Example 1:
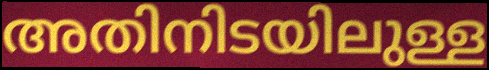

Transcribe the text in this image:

അതിനിടയിലുള്ള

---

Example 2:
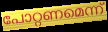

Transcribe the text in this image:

പോറ്റണമെന്ന്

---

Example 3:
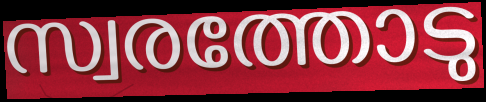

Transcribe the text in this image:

സ്വരത്തോടു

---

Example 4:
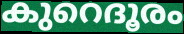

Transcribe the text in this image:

കുറെദൂരം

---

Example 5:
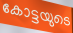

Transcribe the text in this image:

കോട്ടയുടെ